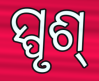
ସ୍ପୃଶ୍